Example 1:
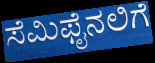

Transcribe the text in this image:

ಸೆಮಿಫೈನಲಿಗೆ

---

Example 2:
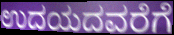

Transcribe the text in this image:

ಉದಯದವರೆಗೆ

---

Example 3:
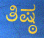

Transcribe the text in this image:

ತಿಷ್ಠ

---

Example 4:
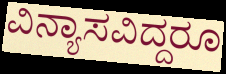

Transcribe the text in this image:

ವಿನ್ಯಾಸವಿದ್ದರೂ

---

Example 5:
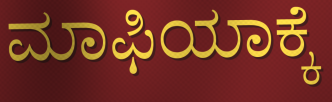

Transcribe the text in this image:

ಮಾಫಿಯಾಕ್ಕೆ